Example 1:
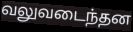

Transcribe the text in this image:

வலுவடைந்தன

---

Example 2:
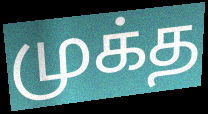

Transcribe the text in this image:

முக்த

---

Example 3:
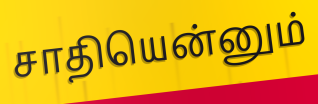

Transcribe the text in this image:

சாதியென்னும்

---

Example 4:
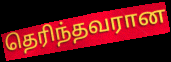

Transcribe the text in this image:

தெரிந்தவரான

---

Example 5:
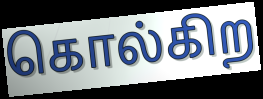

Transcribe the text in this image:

கொல்கிற